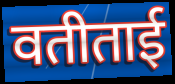
वतीताई